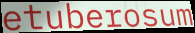
etuberosum